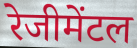
रेजीमेंटल